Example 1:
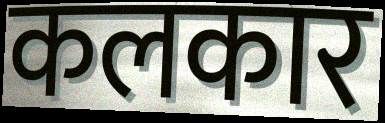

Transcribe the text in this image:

कलकार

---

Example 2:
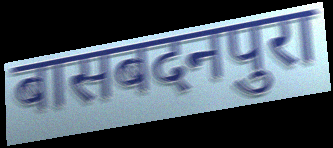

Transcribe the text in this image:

बासबदनपुरा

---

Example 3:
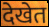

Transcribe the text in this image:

देखेत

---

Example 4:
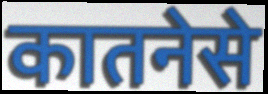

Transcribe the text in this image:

कातनेसे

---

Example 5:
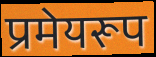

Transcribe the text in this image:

प्रमेयरूप